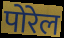
पोरेल